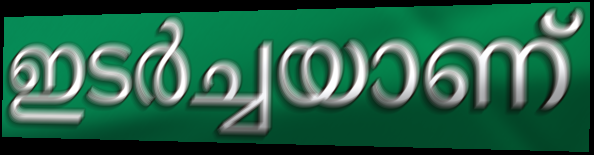
ഇടർച്ചയാണ്